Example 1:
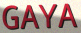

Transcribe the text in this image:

GAYA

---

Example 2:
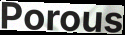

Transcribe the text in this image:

Porous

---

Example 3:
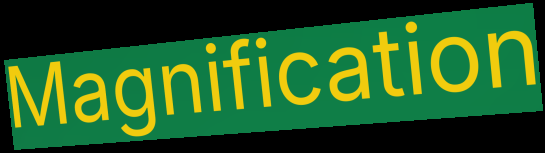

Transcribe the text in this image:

Magnification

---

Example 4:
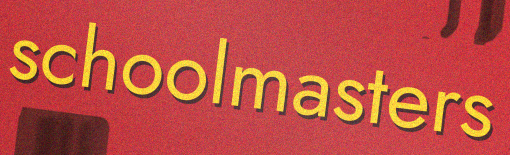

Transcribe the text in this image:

schoolmasters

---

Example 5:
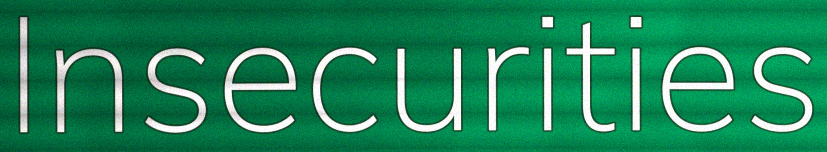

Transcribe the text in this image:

Insecurities